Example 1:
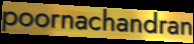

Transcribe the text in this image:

poornachandran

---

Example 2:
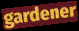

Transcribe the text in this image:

gardener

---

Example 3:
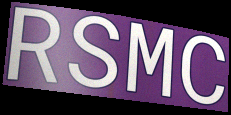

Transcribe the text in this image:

RSMC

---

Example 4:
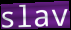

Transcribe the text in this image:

slav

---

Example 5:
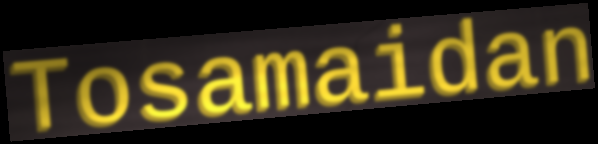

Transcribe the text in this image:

Tosamaidan